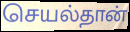
செயல்தான்